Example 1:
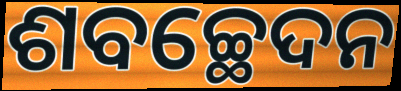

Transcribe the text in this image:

ଶବଚ୍ଛେଦନ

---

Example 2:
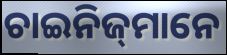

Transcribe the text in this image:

ଚାଇନିଜ୍‍ମାନେ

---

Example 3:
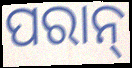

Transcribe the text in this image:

ପରାନ୍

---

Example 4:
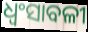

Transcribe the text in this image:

ଧ୍ୱଂସାବଳୀ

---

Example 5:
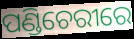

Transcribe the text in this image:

ପଣ୍ଡିଚେରୀରେ